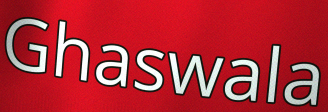
Ghaswala